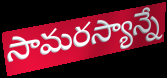
సామరస్యాన్నే